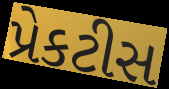
પ્રેકટીસ